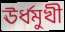
ঊৰ্ধমুখী